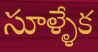
సూళ్ళేక